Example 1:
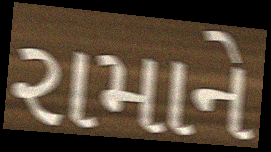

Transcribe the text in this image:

રામાને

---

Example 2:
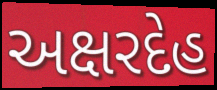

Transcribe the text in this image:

અક્ષરદેહ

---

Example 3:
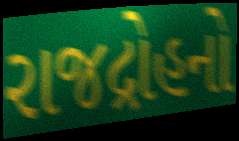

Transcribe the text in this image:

રાજદ્રોહનો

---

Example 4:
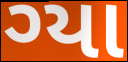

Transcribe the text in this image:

ગ્યા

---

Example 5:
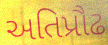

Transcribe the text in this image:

અતિપ્રૌઢ